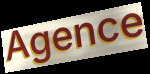
Agence